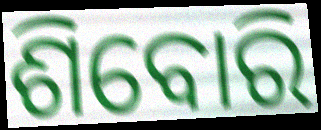
ଶିବୋରି